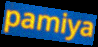
pamiya